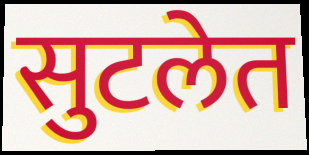
सुटलेत